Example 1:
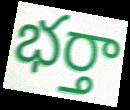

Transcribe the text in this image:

భర్తా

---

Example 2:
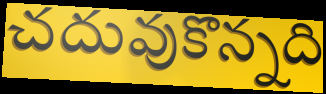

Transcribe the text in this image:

చదువుకొన్నది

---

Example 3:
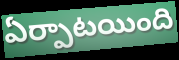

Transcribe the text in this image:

ఏర్పాటయింది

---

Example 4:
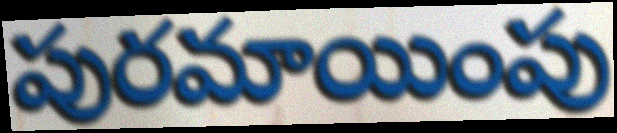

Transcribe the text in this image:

పురమాయింపు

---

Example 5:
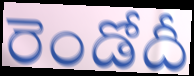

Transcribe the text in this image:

రెండోదీ